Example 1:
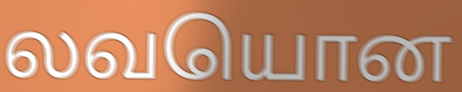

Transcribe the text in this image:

லவயொன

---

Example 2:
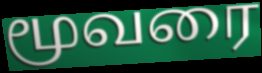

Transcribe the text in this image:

மூவரை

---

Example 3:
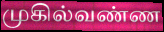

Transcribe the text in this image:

முகில்வண்ண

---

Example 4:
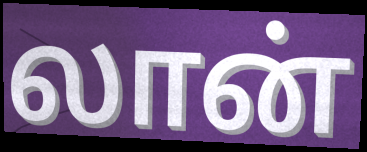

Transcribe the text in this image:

லான்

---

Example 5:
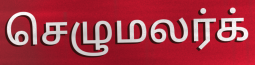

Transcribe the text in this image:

செழுமலர்க்